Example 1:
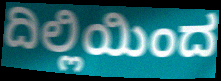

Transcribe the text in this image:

ದಿಲ್ಲಿಯಿಂದ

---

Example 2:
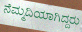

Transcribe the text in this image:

ನೆಮ್ಮದಿಯಾಗಿದ್ದರು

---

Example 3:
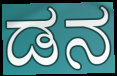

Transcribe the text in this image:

ಡನ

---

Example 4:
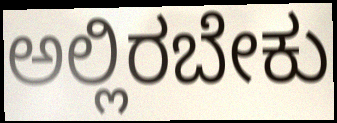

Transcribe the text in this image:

ಅಲ್ಲಿರಬೇಕು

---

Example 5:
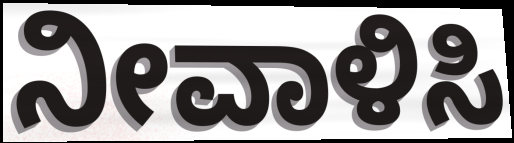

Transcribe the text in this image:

ನೀವಾಳಿಸಿ